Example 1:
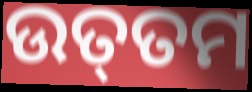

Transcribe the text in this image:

ଉତ୍‌ତମ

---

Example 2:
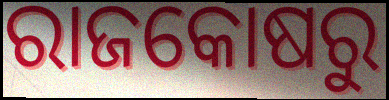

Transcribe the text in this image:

ରାଜକୋଷରୁ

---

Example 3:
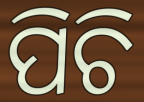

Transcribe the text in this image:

ପିଚି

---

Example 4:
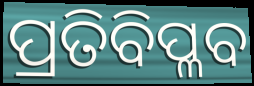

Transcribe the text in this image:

ପ୍ରତିବିପ୍ଳବ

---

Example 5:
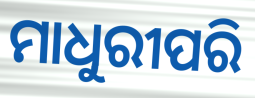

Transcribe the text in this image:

ମାଧୁରୀପରି